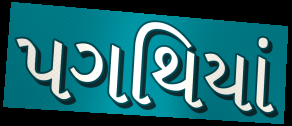
પગથિયાં